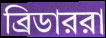
ব্রিডাররা